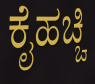
ಕೈಹಚ್ಚಿ